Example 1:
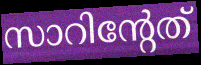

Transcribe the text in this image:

സാറിന്റേത്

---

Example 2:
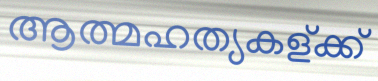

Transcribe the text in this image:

ആത്മഹത്യകള്ക്ക്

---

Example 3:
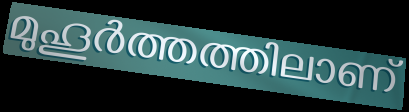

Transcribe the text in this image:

മുഹൂർത്തത്തിലാണ്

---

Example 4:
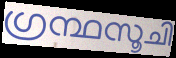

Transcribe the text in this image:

ഗ്രന്ഥസൂചി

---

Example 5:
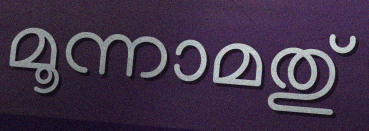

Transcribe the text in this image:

മൂന്നാമതു്